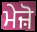
ਮੇਜ਼ੋ